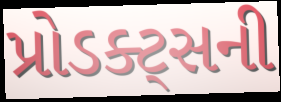
પ્રોડક્ટ્સની